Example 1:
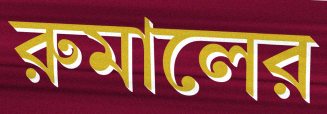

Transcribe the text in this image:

রুমালের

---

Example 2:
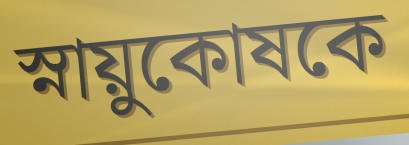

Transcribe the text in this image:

স্নায়ুকোষকে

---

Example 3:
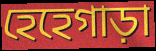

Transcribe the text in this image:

হেহেগাড়া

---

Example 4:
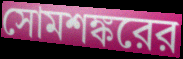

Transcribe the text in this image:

সোমশঙ্করের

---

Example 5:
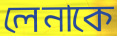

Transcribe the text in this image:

লেনাকে